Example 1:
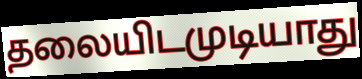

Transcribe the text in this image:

தலையிடமுடியாது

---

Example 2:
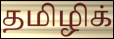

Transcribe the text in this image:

தமிழிக்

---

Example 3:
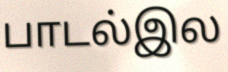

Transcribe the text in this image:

பாடல்இல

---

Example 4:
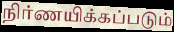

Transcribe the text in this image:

நிர்ணயிக்கப்படும்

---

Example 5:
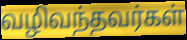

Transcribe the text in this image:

வழிவந்தவர்கள்